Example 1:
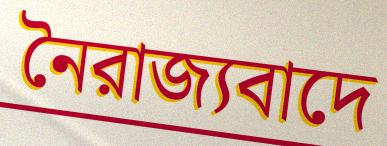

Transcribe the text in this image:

নৈরাজ্যবাদে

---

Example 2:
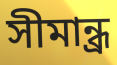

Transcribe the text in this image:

সীমান্ধ্র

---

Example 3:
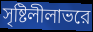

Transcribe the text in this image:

সৃষ্টিলীলাভরে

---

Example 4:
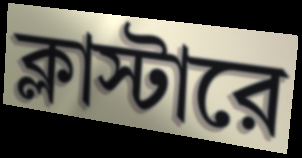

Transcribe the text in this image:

ক্লাস্টারে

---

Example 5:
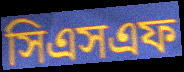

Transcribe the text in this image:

সিএসএফ